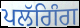
ਪਲੱਗਿੰਗ